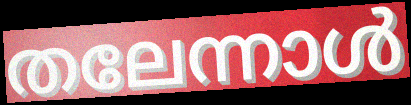
തലേന്നാൾ